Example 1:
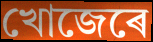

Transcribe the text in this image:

খোজেৰে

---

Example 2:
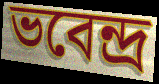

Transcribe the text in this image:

ভবেন্দ্ৰ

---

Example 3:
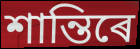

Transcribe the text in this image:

শান্তিৰে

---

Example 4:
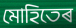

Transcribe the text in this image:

মোহিতেৰ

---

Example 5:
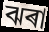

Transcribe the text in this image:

ঝৰা